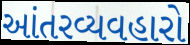
આંતરવ્યવહારો